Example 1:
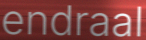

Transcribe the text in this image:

endraal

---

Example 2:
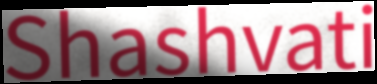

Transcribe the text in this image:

Shashvati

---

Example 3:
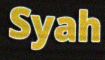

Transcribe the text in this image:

Syah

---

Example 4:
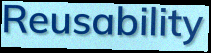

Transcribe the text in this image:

Reusability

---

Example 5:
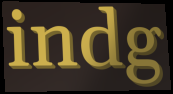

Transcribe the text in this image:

indg